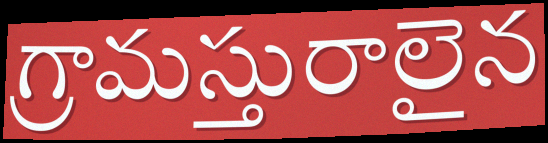
గ్రామస్తురాలైన